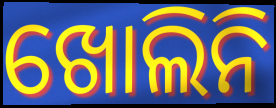
ଖୋଲିନି